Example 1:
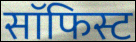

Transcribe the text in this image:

सॉफिस्ट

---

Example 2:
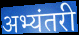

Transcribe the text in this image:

अभ्यंतरी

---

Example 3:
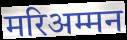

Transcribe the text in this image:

मरिअम्मन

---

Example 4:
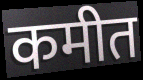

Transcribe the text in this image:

कमीत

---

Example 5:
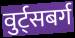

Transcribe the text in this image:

वुर्ट्सबर्ग